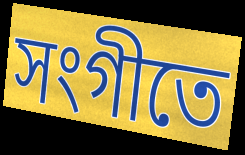
সংগীতে